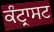
ਕੰਟ੍ਰਾਸਟ